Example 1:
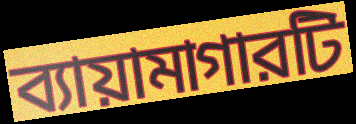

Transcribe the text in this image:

ব্যায়ামাগারটি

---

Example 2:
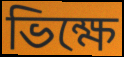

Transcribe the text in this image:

ভিক্ষে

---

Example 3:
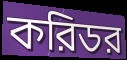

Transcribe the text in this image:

করিডর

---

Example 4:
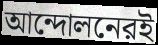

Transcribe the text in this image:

আন্দোলনেরই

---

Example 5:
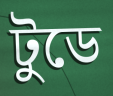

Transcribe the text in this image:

টুডে